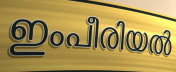
ഇംപീരിയൽ